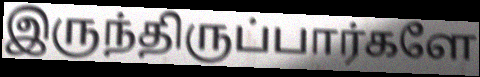
இருந்திருப்பார்களே